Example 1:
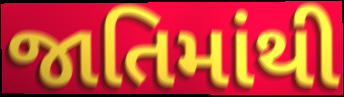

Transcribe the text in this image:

જાતિમાંથી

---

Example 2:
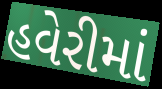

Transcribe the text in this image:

હવેરીમાં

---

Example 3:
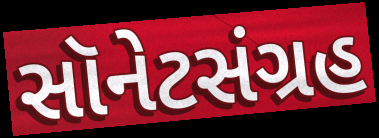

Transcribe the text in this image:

સૉનેટસંગ્રહ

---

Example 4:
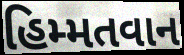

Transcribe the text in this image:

હિમ્મતવાન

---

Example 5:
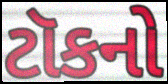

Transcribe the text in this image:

ટૉકનો